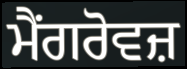
ਮੈਂਗਰੋਵਜ਼